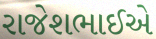
રાજેશભાઈએ